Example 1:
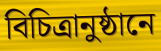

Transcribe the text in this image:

বিচিত্রানুষ্ঠানে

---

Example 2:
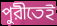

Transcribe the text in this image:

পুরীতেই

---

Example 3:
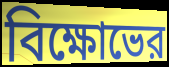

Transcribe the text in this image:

বিক্ষোভের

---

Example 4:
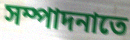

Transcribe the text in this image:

সম্পাদনাতে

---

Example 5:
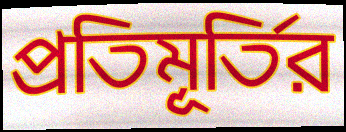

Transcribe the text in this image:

প্রতিমূর্তির